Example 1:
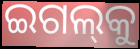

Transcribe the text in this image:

ଇଗଲ୍‌କୁ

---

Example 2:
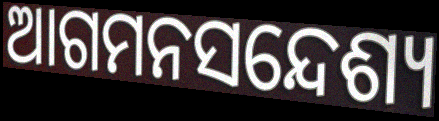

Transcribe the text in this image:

ଆଗମନସନ୍ଦେଶ୍ୟ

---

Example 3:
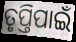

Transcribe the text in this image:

ତୃପ୍ତିପାଇଁ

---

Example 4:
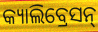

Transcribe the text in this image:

କ୍ୟାଲିବ୍ରେସନ୍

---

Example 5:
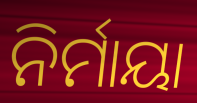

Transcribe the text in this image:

ନିର୍ମାୟା